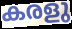
കരളു